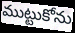
ముట్టుకోను